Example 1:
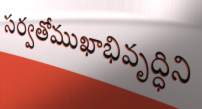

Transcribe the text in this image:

సర్వతోముఖాభివృద్ధిని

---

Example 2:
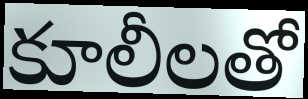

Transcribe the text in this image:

కూలీలతో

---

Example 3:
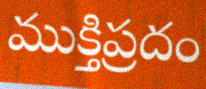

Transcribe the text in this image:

ముక్తిప్రదం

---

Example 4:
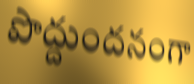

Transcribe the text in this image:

పొద్దుందనంగా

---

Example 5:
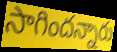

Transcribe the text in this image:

సాగిందన్నారు